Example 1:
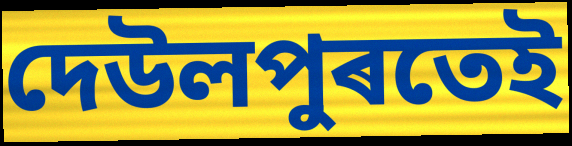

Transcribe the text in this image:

দেউলপুৰতেই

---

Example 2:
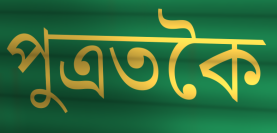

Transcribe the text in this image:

পুত্ৰতকৈ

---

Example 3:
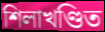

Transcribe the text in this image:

শিলাখণ্ডিত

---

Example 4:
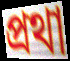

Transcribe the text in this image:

প্ৰথা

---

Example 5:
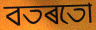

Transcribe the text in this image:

বতৰতো